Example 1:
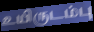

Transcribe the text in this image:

உயிருடம்பு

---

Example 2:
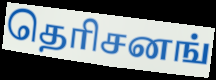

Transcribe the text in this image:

தெரிசனங்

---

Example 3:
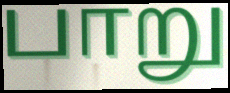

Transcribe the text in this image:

பாறு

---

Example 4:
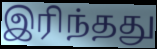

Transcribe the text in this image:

இரிந்தது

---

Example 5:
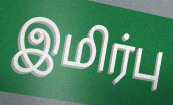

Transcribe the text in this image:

இமிர்பு